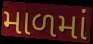
માળમાં